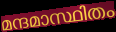
മന്ദമാസ്ഥിതം